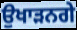
ਉਖਾੜਨਗੇ